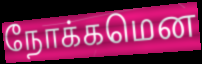
நோக்கமென